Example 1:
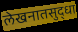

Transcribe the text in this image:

लेखनातसुद्धा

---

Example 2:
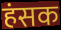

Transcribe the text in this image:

हंसक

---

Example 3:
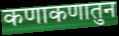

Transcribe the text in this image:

कणाकणातुन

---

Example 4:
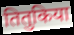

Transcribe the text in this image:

तितुकिया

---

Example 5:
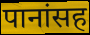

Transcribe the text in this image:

पानांसह